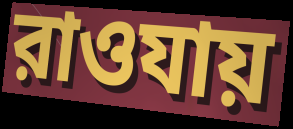
রাওযায়